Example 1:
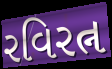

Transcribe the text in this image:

રવિરત્ન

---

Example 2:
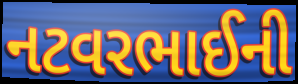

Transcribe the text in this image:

નટવરભાઈની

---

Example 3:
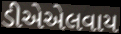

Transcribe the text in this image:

ડીએએલવાય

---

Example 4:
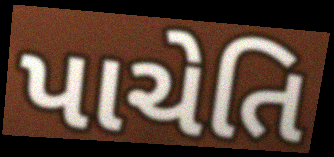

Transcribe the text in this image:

પાચેતિ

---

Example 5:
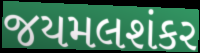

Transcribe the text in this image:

જયમલશંકર